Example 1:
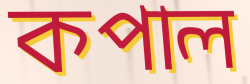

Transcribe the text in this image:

কপাল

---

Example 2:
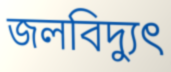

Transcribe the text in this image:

জলবিদ্যুৎ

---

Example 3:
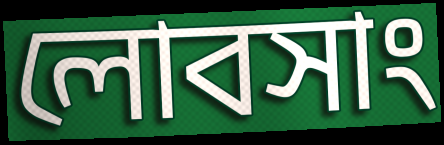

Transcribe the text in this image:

লোবসাং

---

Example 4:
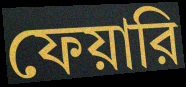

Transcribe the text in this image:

ফেয়ারি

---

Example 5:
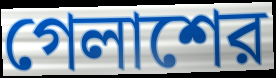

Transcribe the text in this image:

গেলাশের